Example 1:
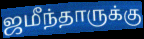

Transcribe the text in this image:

ஜமீந்தாருக்கு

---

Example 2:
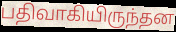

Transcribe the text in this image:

பதிவாகியிருந்தன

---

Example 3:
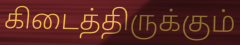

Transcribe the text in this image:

கிடைத்திருக்கும்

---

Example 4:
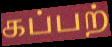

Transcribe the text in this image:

கப்பற்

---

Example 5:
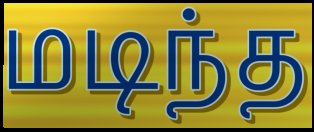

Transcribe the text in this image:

மடிந்த